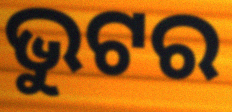
ଭୁଟର